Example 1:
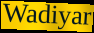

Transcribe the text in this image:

Wadiyar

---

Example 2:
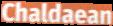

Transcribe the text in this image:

Chaldaean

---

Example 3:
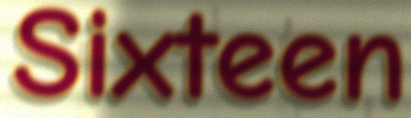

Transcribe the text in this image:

Sixteen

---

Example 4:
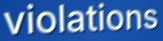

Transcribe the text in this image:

violations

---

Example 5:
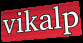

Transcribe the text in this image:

vikalp